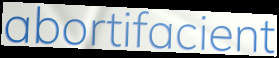
abortifacient